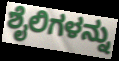
ಶೈಲಿಗಳನ್ನು